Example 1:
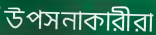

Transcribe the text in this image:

উপসনাকারীরা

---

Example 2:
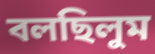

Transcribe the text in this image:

বলছিলুম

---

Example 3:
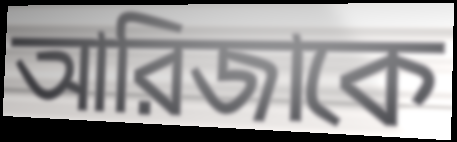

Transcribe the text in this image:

আরিজাকে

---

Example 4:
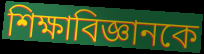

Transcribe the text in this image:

শিক্ষাবিজ্ঞানকে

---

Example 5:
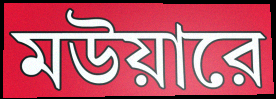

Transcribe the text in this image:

মউয়ারে